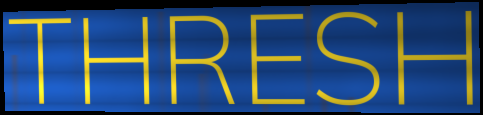
THRESH